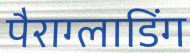
पैराग्लाडिंग